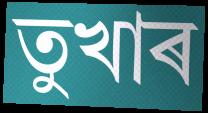
তুখাৰ